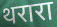
थरारा